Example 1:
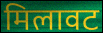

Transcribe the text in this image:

मिलावट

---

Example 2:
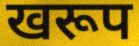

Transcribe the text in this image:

खरूप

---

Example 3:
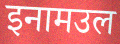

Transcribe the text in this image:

इनामउल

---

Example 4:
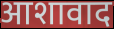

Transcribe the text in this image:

आशावाद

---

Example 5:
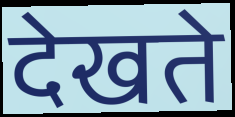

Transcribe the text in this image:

देखते